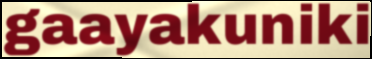
gaayakuniki